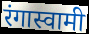
रंगास्वामी